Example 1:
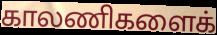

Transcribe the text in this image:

காலணிகளைக்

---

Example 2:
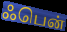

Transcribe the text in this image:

ஃபென்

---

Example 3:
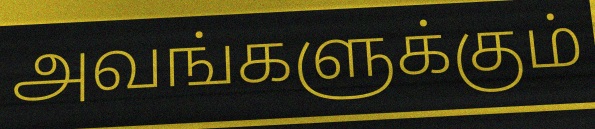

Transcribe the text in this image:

அவங்களுக்கும்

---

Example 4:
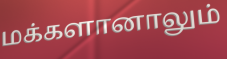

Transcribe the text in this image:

மக்களானாலும்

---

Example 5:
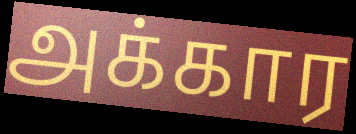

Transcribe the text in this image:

அக்கார